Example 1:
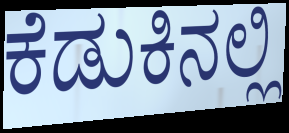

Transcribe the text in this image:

ಕೆಡುಕಿನಲ್ಲಿ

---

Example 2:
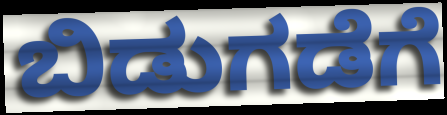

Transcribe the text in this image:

ಬಿಡುಗಡೆಗೆ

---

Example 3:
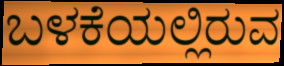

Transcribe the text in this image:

ಬಳಕೆಯಲ್ಲಿರುವ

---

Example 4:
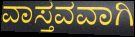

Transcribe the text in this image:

ವಾಸ್ತವವಾಗಿ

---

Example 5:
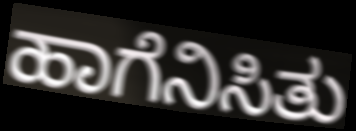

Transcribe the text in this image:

ಹಾಗೆನಿಸಿತು